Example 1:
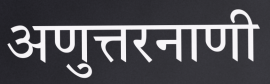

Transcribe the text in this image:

अणुत्तरनाणी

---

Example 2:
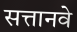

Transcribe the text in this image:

सत्तानवे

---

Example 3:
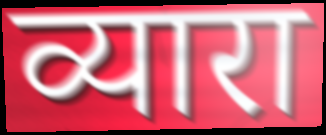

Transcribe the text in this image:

व्यारा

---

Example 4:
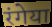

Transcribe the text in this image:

रंगेया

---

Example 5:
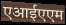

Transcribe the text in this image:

एआईएएम